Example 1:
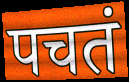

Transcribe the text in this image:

पचतं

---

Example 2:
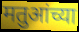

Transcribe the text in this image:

मतुआंच्या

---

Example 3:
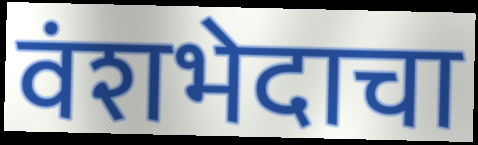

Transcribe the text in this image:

वंशभेदाचा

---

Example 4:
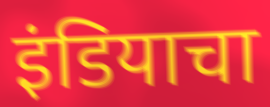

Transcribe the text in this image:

इंडियाचा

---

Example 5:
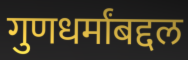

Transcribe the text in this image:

गुणधर्मांबद्दल